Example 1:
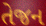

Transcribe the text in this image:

તેજન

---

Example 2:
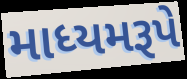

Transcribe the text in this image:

માધ્યમરૂપે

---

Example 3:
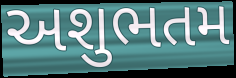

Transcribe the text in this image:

અશુભતમ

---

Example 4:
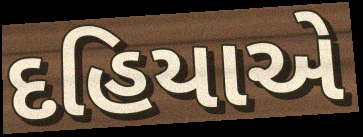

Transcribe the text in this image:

દહિયાએ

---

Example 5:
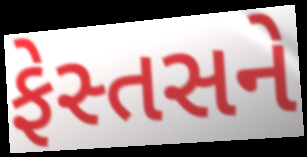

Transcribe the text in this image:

ફેસ્તસને